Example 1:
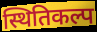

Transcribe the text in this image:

स्थितिकल्प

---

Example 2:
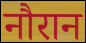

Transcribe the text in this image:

नौरान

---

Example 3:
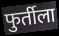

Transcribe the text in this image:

फुर्तीला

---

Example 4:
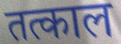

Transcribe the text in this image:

तत्‍काल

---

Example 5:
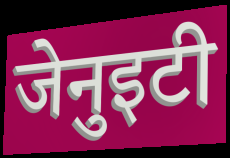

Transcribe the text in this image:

जेनुइटी